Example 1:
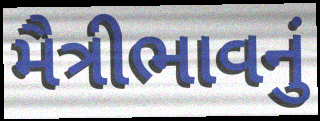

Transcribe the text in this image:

મૈત્રીભાવનું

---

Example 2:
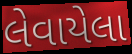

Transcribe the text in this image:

લેવાયેલા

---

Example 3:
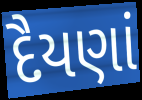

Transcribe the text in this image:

દૈયણાં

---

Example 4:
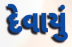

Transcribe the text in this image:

દેવાયું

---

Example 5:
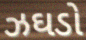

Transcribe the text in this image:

ઝઘડો